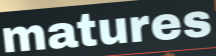
matures